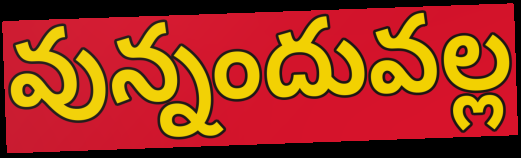
వున్నందువల్ల